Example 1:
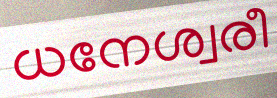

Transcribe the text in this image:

ധനേശ്വരീ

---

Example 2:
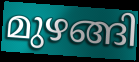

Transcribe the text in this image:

മുഴങ്ങി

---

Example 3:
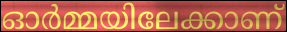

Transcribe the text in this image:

ഓർമ്മയിലേക്കാണ്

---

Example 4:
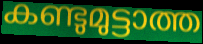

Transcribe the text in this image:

കണ്ടുമുട്ടാത്ത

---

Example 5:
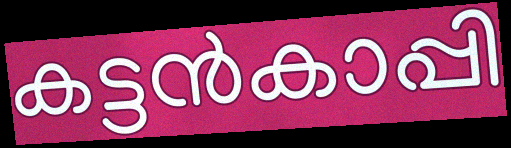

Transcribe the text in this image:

കട്ടൻകാപ്പി